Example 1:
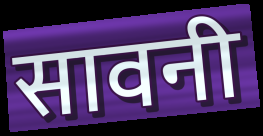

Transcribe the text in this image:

सावनी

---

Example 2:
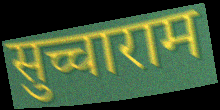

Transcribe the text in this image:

सुच्चाराम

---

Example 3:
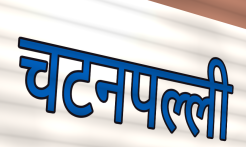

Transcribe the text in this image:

चटनपल्ली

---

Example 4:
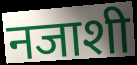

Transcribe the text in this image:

नजाशी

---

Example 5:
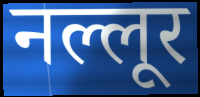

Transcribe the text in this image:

नल्लूर